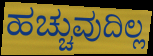
ಹಚ್ಚುವುದಿಲ್ಲ